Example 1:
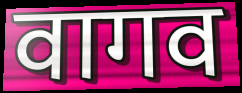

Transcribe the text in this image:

वागव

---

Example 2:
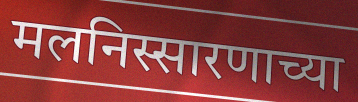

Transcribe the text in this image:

मलनिस्सारणाच्या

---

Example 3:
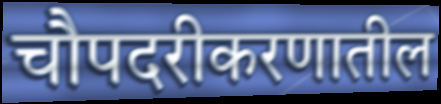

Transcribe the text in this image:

चौपदरीकरणातील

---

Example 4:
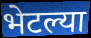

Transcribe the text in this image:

भेटल्या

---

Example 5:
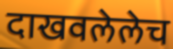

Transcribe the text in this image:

दाखवलेलेच